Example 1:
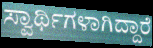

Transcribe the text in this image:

ಸ್ವಾರ್ಥಿಗಳಾಗಿದ್ದಾರೆ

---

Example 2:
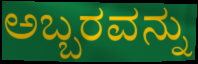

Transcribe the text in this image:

ಅಬ್ಬರವನ್ನು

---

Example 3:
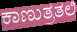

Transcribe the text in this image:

ಕಾಣುತ್ರತಲಿ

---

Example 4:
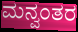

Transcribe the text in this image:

ಮನ್ವಂತರ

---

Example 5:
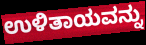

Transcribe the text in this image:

ಉಳಿತಾಯವನ್ನು